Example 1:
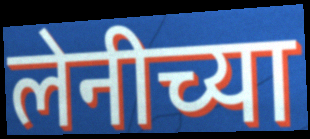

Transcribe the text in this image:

लेनीच्या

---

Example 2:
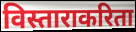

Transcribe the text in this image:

विस्ताराकरिता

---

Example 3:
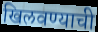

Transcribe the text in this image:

खिलवण्याची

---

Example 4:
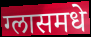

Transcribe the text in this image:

ग्लासमधे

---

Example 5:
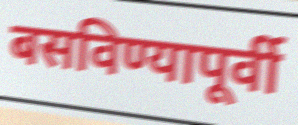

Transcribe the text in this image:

बसविण्यापूर्वी